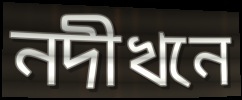
নদীখনে